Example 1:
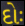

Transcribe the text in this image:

દોઃ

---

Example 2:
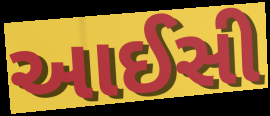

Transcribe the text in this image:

આઈસી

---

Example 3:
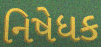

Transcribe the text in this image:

નિષેધક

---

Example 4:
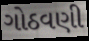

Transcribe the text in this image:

ગોઠવણી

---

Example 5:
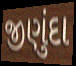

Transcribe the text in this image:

જીણુંદા